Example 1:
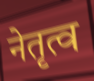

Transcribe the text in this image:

नेतृत्‍व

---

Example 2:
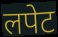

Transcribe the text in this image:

लपेट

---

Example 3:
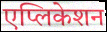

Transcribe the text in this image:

एप्लिकेशन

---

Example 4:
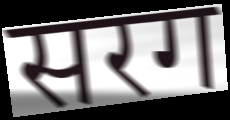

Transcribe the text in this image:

सरग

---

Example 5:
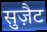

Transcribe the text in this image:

सुज़ैट